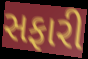
સફારી